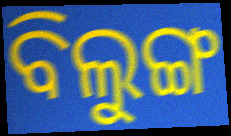
ବିଲୁଙ୍ଗ